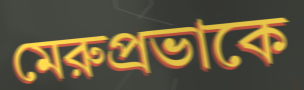
মেরুপ্রভাকে